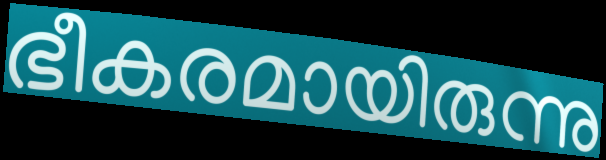
ഭീകരമായിരുന്നു